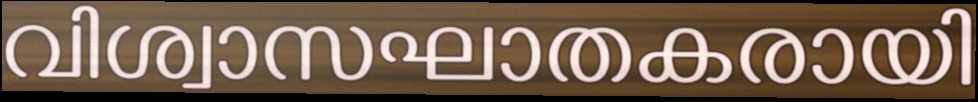
വിശ്വാസഘാതകരായി